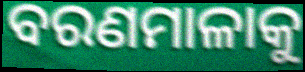
ବରଣମାଳାକୁ